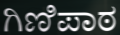
ಗಿಣಿಪಾಠ